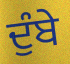
ਦੁੰਬੇ